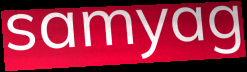
samyag